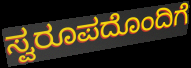
ಸ್ವರೂಪದೊಂದಿಗೆ